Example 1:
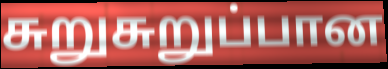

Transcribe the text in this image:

சுறுசுறுப்பான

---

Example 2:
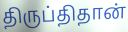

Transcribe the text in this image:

திருப்திதான்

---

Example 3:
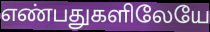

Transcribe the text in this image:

எண்பதுகளிலேயே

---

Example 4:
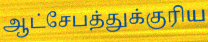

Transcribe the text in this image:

ஆட்சேபத்துக்குரிய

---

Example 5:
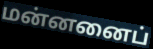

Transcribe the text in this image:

மன்னனைப்